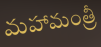
మహామంత్రీ